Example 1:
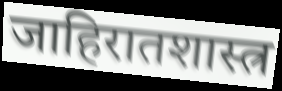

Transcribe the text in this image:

जाहिरातशास्त्र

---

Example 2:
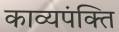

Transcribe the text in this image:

काव्यपंक्ति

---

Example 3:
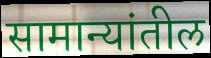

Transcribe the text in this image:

सामान्यांतील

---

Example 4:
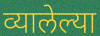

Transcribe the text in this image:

व्यालेल्या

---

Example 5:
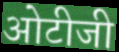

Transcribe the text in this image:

ओटीजी